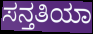
ಸನ್ತತಿಯಾ